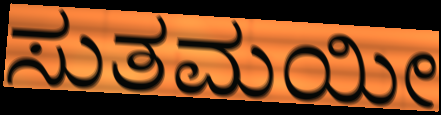
ಸುತಮಯೀ